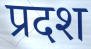
प्रदश